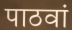
पाठवां